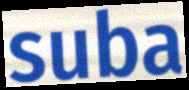
suba